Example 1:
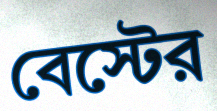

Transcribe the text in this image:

বেস্টের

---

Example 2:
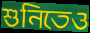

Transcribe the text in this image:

শুনিতেও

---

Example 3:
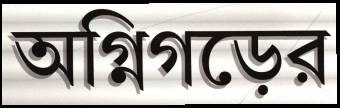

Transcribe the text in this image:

অগ্নিগড়ের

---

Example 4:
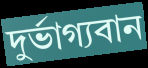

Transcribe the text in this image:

দুর্ভাগ্যবান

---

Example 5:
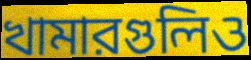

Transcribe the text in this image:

খামারগুলিও